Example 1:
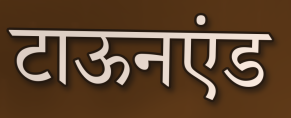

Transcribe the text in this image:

टाऊनएंड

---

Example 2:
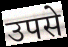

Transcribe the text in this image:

उपसे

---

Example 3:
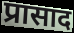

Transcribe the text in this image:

प्रासाद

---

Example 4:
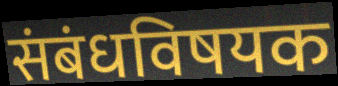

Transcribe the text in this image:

संबंधविषयक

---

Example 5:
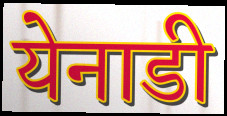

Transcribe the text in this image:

येनाडी